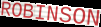
ROBINSON